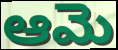
ఆమె